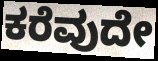
ಕರೆವುದೇ